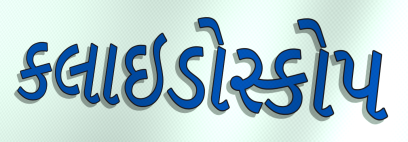
કલાઇડોસ્કોપ